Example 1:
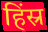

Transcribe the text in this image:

हिंस्र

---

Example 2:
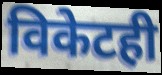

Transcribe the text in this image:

विकेटही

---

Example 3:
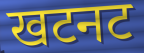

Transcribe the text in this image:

खटनट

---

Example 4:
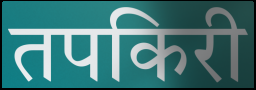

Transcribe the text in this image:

तपकिरी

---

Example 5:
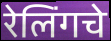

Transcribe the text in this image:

रेलिंगचे